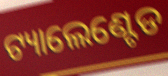
ଟ୍ୟାଲେଣ୍ଟେଡ